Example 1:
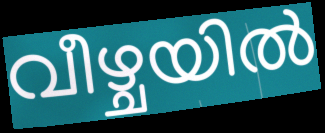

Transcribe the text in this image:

വീഴ്ചയിൽ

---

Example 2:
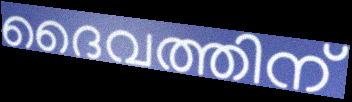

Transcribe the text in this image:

ദൈവത്തിന്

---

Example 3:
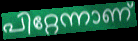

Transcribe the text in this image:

പിറ്റേന്നാണ്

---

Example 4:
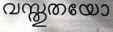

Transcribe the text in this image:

വസ്തുതയോ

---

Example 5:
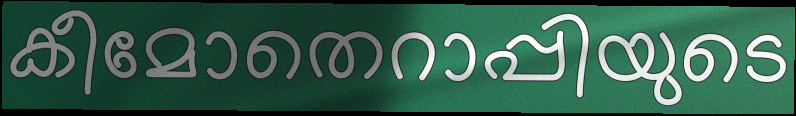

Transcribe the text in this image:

കീമോതെറാപ്പിയുടെ